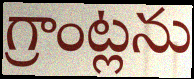
గ్రాంట్లను